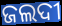
ଜଲଦୀ